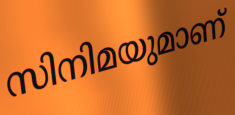
സിനിമയുമാണ്